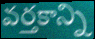
వర్తకాన్ని